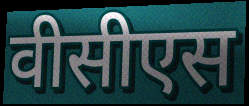
वीसीएस